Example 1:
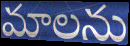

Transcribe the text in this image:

మాలను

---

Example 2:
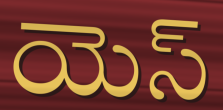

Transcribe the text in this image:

యెస్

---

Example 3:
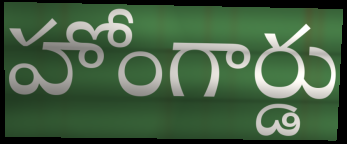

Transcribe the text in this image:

హోంగార్డు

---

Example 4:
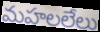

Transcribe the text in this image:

మహలలేలు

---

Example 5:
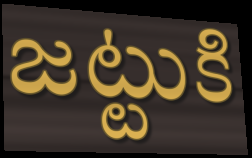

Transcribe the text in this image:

జట్టుకి